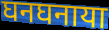
घनघनाया